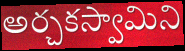
అర్చకస్వామిని